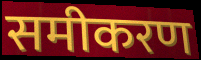
समीकरण